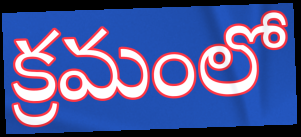
క్రమంలో